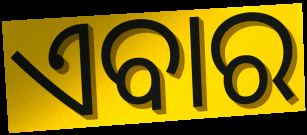
ଏବାର